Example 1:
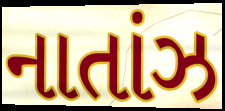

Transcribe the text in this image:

નાતાંઝ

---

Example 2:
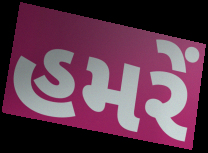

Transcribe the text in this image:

હમરેં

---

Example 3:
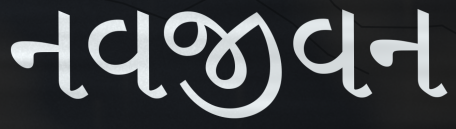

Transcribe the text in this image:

નવજીવન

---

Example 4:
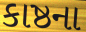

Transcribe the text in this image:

કાષ્ઠના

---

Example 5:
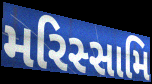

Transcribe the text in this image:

મરિસ્સામિ